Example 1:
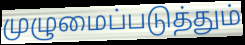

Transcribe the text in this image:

முழுமைப்படுத்தும்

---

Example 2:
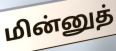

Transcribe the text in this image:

மின்னுத்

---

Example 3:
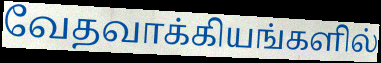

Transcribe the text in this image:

வேதவாக்கியங்களில்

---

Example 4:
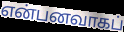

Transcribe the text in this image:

என்பனவாகப்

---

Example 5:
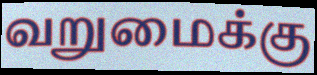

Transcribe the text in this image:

வறுமைக்கு